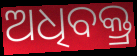
ଅଧିବକ୍ତ୍ର